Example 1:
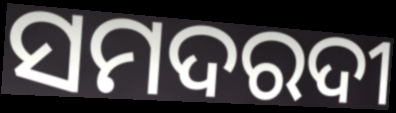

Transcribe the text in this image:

ସମଦରଦୀ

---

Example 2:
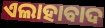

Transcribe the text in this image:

ଏଲାହାବାଦ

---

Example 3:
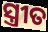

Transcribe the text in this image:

ସ୍ତ୍ରୀତ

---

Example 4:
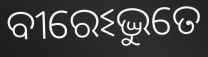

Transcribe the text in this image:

ବୀରେଽଦ୍ଭୁତେ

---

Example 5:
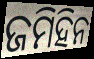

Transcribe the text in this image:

ଜମିହିନ